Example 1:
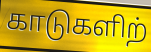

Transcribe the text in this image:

காடுகளிற்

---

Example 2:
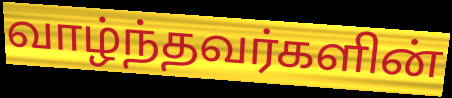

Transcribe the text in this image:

வாழ்ந்தவர்களின்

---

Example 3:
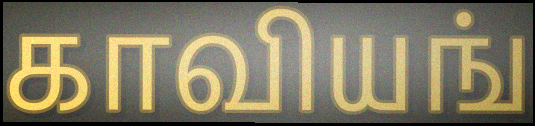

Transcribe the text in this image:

காவியங்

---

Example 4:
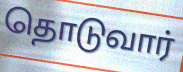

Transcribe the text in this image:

தொடுவார்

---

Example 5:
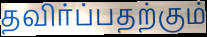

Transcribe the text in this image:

தவிர்ப்பதற்கும்